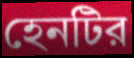
হেনটির